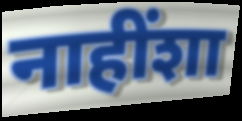
नाहींशा